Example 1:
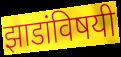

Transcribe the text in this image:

झाडांविषयी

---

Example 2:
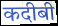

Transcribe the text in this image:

कदीबी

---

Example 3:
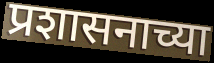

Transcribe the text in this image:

प्रशासनाच्या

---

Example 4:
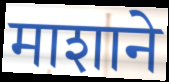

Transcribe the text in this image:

माशाने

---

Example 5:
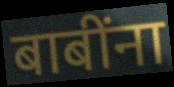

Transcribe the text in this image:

बाबींना